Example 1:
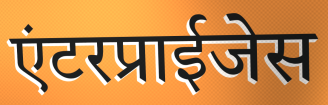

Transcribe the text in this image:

एंटरप्राईजेस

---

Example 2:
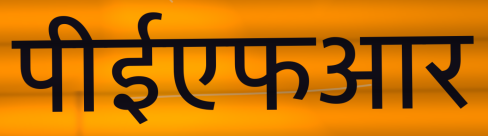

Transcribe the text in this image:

पीईएफआर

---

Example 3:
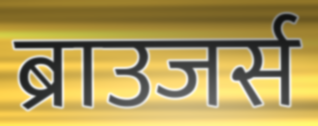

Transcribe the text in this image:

ब्राउजर्स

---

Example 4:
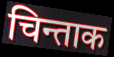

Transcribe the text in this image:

चिन्ताक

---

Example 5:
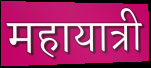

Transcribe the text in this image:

महायात्री